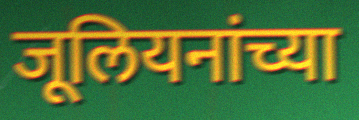
जूलियनांच्या